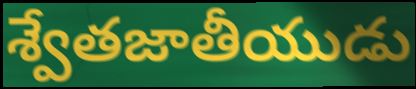
శ్వేతజాతీయుడు